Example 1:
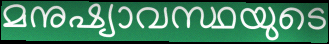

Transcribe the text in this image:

മനുഷ്യാവസ്ഥയുടെ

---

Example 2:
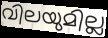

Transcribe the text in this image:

വിലയുമില്ല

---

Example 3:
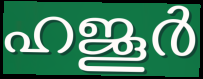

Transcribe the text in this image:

ഹജൂർ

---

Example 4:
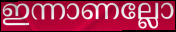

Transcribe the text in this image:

ഇന്നാണല്ലോ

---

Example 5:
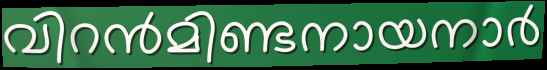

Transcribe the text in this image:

വിറൻമിണ്ടനായനാർ